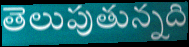
తెలుపుతున్నది